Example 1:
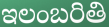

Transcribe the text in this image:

ఇలంబరితి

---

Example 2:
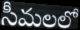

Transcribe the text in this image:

సీమలలో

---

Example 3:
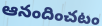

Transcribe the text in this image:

ఆనందించటం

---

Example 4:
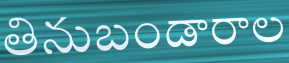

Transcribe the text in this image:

తినుబండారాల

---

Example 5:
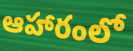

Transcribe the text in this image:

ఆహారంలో